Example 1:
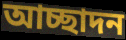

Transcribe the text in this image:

আচ্ছাদন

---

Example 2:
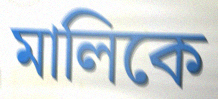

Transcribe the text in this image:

মালিকে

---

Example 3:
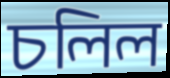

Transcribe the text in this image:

চলিল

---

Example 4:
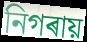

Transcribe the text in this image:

নিগৰায়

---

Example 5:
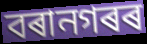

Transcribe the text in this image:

বৰানগৰৰ